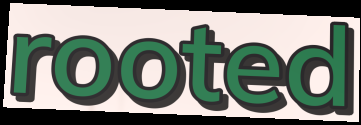
rooted